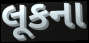
લૂકના